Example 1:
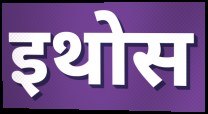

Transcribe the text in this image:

इथोस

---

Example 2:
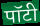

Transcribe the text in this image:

पॉटी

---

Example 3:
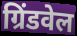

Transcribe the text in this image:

ग्रिंडवेल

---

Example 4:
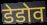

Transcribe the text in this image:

डेडोव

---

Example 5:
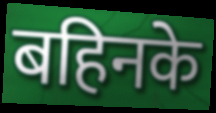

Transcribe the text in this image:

बहिनके